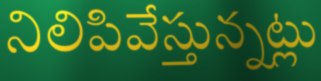
నిలిపివేస్తున్నట్లు